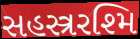
સહસ્ત્રરશ્મિ